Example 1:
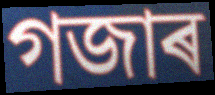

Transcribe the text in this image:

গজাৰ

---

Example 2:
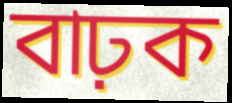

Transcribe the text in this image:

বাঢ়ক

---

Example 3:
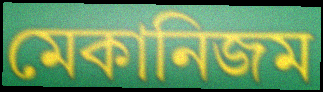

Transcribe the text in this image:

মেকানিজম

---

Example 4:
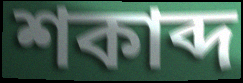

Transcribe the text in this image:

শকাব্দ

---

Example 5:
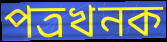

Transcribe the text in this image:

পত্ৰখনক